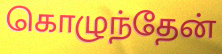
கொழுந்தேன்